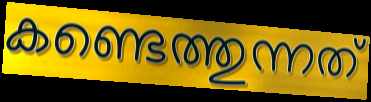
കണ്ടെത്തുന്നത്